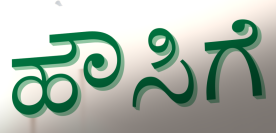
ಹೌಸಿಗೆ